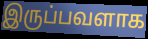
இருப்பவளாக